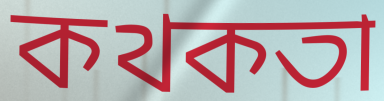
কথকতা